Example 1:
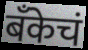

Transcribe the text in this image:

बॅंकेचं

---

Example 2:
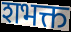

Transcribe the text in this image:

शभक्त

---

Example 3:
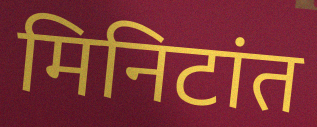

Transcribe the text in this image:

मिनिटांत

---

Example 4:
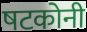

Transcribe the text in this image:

षटकोनी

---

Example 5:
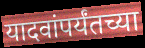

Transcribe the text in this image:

यादवांपर्यंतच्या